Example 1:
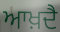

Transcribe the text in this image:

ਆਖ਼ਦੈ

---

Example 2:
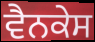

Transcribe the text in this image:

ਵੈਨਕੇਸ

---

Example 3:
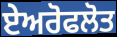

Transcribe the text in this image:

ਏਅਰੋਫਲੋਤ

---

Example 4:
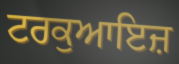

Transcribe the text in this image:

ਟਰਕੁਆਇਜ਼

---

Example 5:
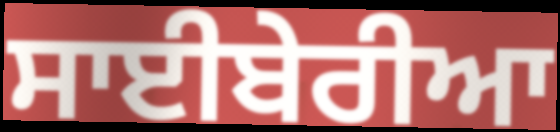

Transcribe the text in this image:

ਸਾਈਬੇਰੀਆ